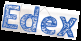
Edex